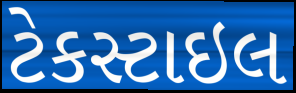
ટેકસ્ટાઇલ